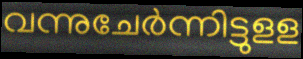
വന്നുചേർന്നിട്ടുളള